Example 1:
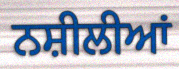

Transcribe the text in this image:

ਨਸ਼ੀਲੀਆਂ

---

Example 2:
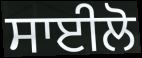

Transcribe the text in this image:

ਸਾਈਲੋ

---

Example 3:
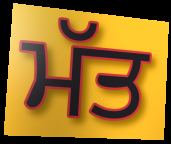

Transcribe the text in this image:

ਮੱਤ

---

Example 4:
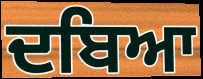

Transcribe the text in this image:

ਦਬਿਆ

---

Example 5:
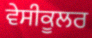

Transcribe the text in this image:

ਵੇਸੀਕੂਲਰ